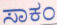
ಸಾಕಂ